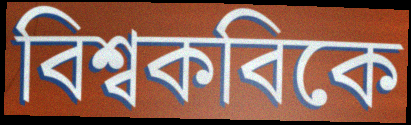
বিশ্বকবিকে